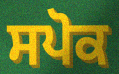
ਸਪੋਕ